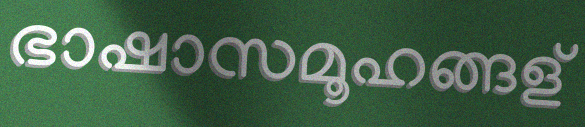
ഭാഷാസമൂഹങ്ങള്